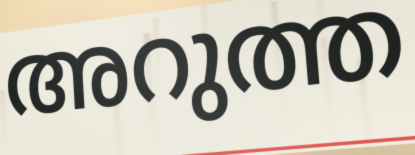
അറുത്ത